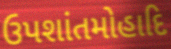
ઉપશાંતમોહાદિ